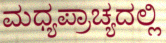
ಮಧ್ಯಪ್ರಾಚ್ಯದಲ್ಲಿ